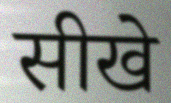
सीखे